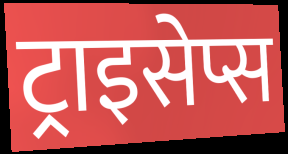
ट्राइसेप्स